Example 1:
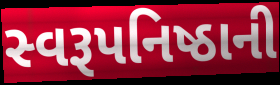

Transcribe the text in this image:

સ્વરૂપનિષ્ઠાની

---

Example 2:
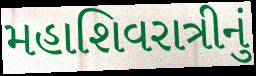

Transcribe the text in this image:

મહાશિવરાત્રીનું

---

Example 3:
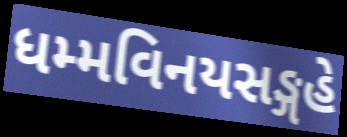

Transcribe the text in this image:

ધમ્મવિનયસઙ્ગહે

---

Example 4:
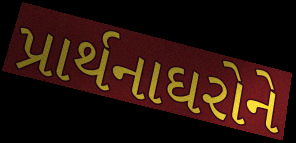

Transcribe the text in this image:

પ્રાર્થનાઘરોને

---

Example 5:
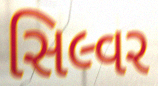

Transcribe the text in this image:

સિલ્વર